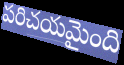
పరిచయమైంది